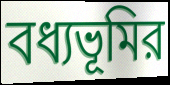
বধ্যভূমির